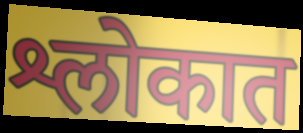
श्लोकात